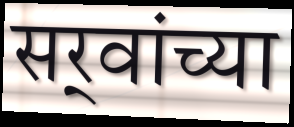
सर्वांच्या